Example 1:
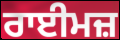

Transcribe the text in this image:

ਰਾਈਮਜ਼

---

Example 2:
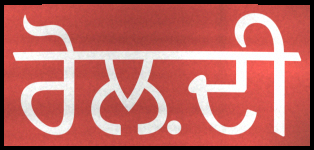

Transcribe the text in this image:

ਰੋਲ਼ਦੀ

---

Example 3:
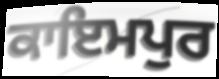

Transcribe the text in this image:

ਕਾਇਮਪੁਰ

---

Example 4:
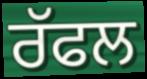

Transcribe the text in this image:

ਰੱਫਲ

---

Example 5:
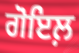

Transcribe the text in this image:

ਗੋਇਲ਼